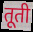
तूती